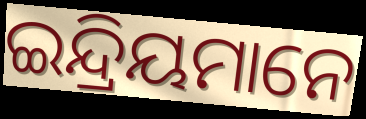
ଇନ୍ଦ୍ରିୟମାନେ